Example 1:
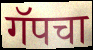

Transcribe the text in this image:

गॅपचा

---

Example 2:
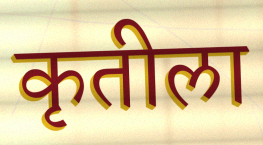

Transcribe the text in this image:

कृतीला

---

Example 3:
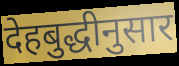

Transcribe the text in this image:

देहबुद्धीनुसार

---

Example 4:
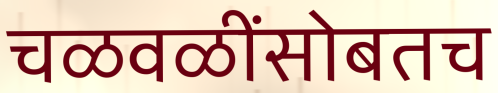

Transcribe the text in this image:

चळवळींसोबतच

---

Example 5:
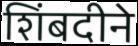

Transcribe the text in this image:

शिंबदीने